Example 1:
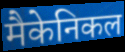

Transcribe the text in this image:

मैकेनिकल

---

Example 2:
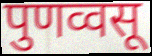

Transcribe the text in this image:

पुणव्वसू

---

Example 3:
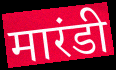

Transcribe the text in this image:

मारंडी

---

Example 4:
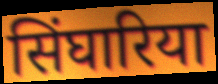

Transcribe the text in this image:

सिंघारिया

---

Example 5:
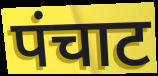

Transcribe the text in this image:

पंचाट